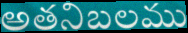
అతనిబలము